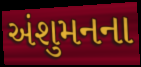
અંશુમનના